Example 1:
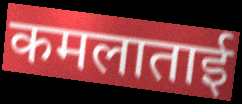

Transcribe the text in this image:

कमलाताई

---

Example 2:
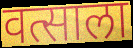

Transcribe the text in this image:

वत्साला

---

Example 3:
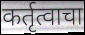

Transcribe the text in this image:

कर्तृत्वाचा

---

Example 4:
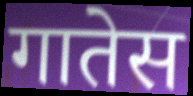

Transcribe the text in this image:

गातेस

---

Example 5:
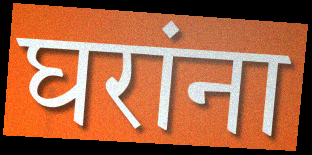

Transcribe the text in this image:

घरांना